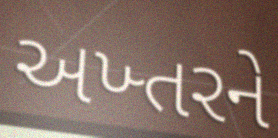
અખ્તરને